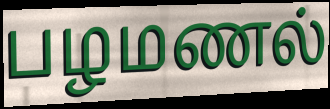
பழமணல்